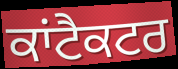
ਕਾਂਟੈਕਟਰ